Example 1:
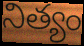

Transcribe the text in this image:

నిత్యం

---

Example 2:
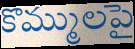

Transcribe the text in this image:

కొమ్ములపై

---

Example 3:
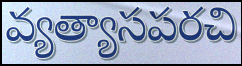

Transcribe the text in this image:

వ్యత్యాసపరచి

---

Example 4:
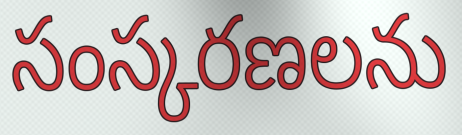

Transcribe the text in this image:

సంస్కరణలను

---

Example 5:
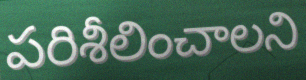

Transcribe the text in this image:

పరిశీలించాలని